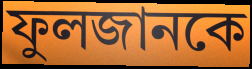
ফুলজানকে